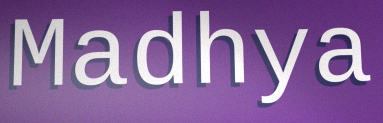
Madhya